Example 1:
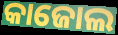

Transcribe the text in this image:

କାଜୋଲ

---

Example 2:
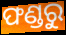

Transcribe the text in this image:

ଫଣ୍ଡରୁ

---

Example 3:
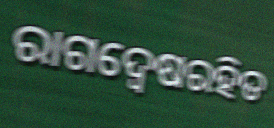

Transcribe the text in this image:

ରାଗଦ୍ୱେଷରହିତ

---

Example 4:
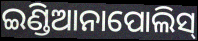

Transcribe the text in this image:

ଇଣ୍ଡିଆନାପୋଲିସ୍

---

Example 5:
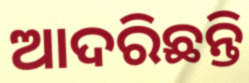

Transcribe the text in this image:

ଆଦରିଛନ୍ତି